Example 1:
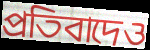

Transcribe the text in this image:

প্রতিবাদেও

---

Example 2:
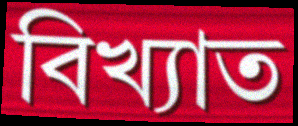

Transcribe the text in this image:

বিখ্যাত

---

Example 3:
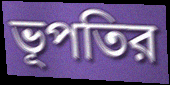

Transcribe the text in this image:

ভূপতির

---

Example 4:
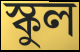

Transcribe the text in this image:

স্কুল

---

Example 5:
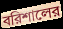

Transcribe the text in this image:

বরিশালের